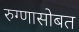
रुग्णासोबत